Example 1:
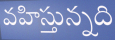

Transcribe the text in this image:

వహిస్తున్నది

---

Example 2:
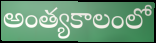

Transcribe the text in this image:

అంత్యకాలంలో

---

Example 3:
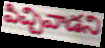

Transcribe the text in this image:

పిచ్చివాడని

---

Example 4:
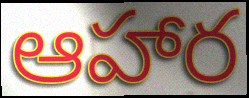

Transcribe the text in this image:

ఆహార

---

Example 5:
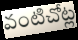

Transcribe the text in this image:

వంటిచోట్ల